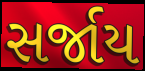
સર્જાય